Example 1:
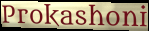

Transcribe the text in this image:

Prokashoni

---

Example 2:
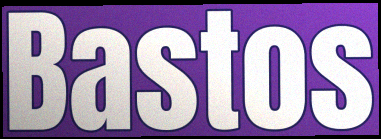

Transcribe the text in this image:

Bastos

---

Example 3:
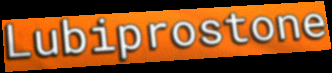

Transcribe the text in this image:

Lubiprostone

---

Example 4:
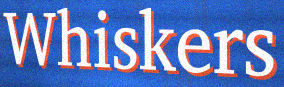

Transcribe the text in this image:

Whiskers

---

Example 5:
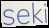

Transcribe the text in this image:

seki